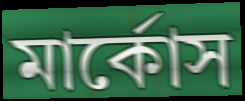
মার্কোস